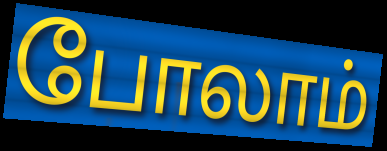
போலாம்